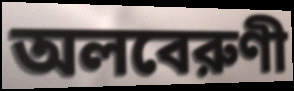
অলবেরুণী